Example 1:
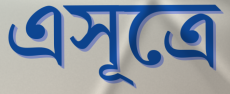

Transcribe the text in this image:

এসূত্রে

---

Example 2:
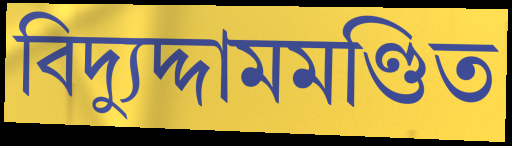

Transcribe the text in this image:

বিদ্যুদ্দামমণ্ডিত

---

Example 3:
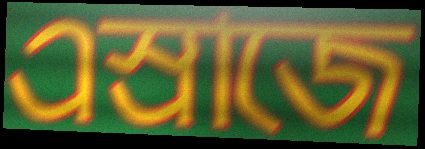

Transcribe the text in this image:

এস্রাজে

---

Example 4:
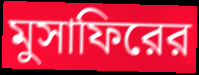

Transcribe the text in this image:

মুসাফিরের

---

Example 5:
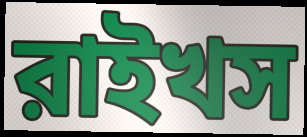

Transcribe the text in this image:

রাইখস